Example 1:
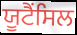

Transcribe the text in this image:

ਯੂਟੈਂਸਿਲ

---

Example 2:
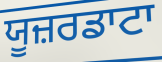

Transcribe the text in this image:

ਯੂਜ਼ਰਡਾਟਾ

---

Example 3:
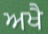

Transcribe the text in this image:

ਅਖੈ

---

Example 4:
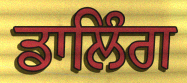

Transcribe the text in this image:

ਡਾਲਿੰਗ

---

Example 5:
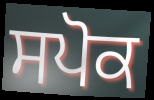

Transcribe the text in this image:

ਸਪੋਕ